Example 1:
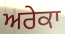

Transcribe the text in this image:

ਅਰੇਕਾ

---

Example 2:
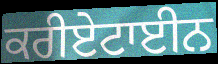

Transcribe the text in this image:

ਕਰੀਏਟਾਈਨ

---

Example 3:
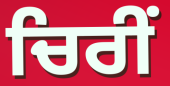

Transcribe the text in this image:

ਚਿਰੀਂ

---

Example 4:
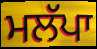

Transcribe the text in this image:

ਮਲੱਪਾ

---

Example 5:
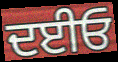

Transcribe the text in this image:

ਦਈਓ